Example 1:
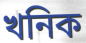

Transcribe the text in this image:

খনিক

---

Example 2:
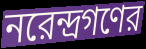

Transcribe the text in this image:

নরেন্দ্রগণের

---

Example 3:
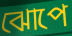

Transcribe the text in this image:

ঝোপে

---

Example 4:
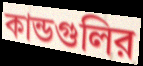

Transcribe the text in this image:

কান্ডগুলির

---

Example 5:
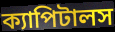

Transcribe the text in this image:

ক্যাপিটালস